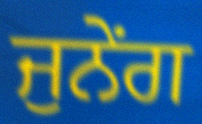
ਜੁਨੇਂਗ